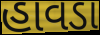
હાવડા